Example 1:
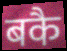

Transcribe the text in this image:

बकै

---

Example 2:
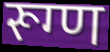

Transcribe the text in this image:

रूग्ण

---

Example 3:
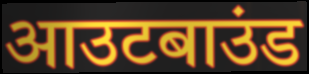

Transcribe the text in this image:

आउटबाउंड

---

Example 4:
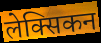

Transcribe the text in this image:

लेक्सिकन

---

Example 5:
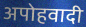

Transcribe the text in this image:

अपोहवादी